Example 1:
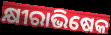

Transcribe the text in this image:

କ୍ଷୀରାଭିଷେକ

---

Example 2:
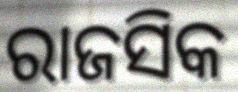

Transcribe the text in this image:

ରାଜସିକ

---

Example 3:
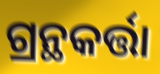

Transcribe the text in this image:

ଗ୍ରନ୍ଥକର୍ତ୍ତା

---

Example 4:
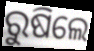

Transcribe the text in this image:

ରୁଷିଲେ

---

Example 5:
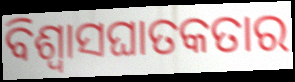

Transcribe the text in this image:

ବିଶ୍ଵାସଘାତକତାର